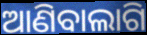
ଆଣିବାଲାଗି